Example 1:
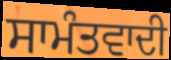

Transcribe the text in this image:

ਸਾਮੰਤਵਾਦੀ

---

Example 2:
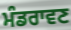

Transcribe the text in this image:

ਮੰਡਰਾਵਣ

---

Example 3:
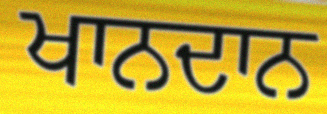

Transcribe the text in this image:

ਖਾਨਦਾਨ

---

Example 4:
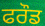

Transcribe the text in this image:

ਫਰੌਡ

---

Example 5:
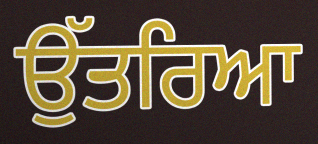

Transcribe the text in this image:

ਉੱਤਰਿਆ